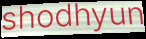
shodhyun